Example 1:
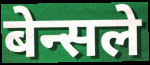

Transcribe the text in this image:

बेन्सले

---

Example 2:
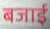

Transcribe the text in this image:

बजाई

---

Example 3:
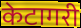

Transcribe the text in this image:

केटागरी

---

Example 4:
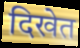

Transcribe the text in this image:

दिखेत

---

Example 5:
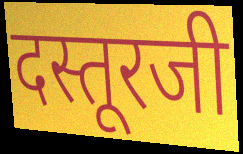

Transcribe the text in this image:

दस्तूरजी